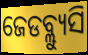
ଜେଡବ୍ଲ୍ୟୁସି